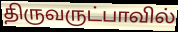
திருவருட்பாவில்